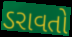
ડરાવતો